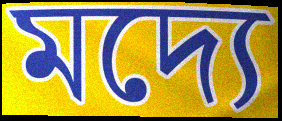
মদ্যে